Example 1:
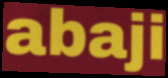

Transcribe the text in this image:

abaji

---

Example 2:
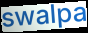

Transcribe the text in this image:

swalpa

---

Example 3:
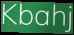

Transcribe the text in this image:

Kbahj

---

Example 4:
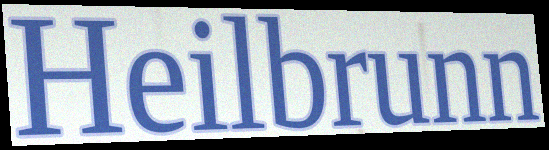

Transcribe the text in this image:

Heilbrunn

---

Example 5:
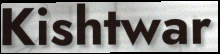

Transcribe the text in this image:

Kishtwar